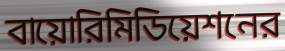
বায়োরিমিডিয়েশনের